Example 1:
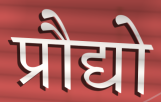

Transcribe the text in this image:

प्रौद्यो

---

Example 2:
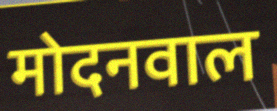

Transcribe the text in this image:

मोदनवाल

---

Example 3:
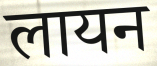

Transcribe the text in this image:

लायन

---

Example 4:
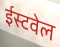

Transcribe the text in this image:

ईस्टवेल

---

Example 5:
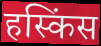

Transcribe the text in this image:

हस्किंस